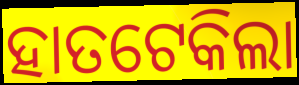
ହାତଟେକିଲା